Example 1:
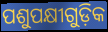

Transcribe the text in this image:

ପଶୁପକ୍ଷୀଗୁଡ଼ିକ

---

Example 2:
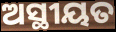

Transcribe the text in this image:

ଅସ୍ଥୀୟତ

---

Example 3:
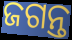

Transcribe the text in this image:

ଜଗନ୍ତ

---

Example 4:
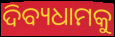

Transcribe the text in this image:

ଦିବ୍ୟଧାମକୁ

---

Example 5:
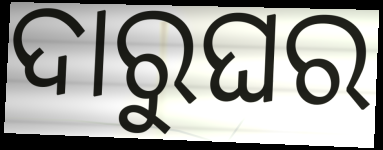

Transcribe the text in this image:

ଦାରୁଘର